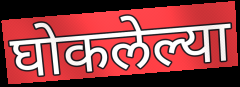
घोकलेल्या